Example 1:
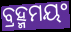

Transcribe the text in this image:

ବ୍ରହ୍ମମୟଂ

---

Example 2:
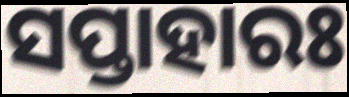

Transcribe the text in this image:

ସପ୍ତାହାରଃ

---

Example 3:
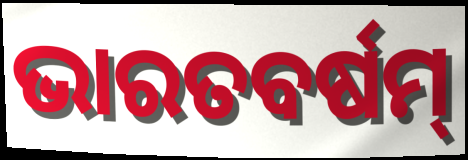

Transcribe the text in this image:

ଭାରତବର୍ଷମ୍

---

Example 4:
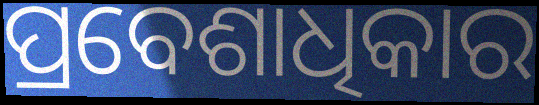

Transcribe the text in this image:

ପ୍ରବେଶାଧିକାର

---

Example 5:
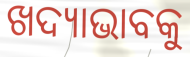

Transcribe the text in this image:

ଖଦ୍ୟାଭାବକୁ